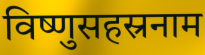
विष्णुसहस्रनाम